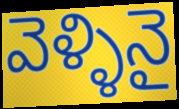
వెళ్ళినై